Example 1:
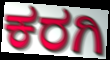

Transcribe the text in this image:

ಕರಗಿ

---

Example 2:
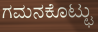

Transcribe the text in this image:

ಗಮನಕೊಟ್ಟು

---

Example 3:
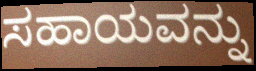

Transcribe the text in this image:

ಸಹಾಯವನ್ನು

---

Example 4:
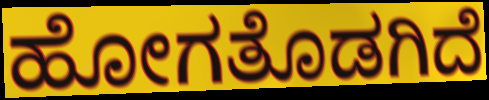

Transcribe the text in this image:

ಹೋಗತೊಡಗಿದೆ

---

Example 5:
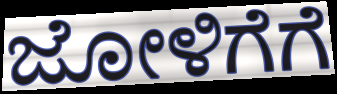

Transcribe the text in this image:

ಜೋಳಿಗೆಗೆ